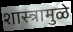
शास्त्रामुळे